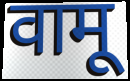
वामू